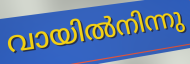
വായിൽനിന്നു